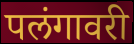
पलंगावरी